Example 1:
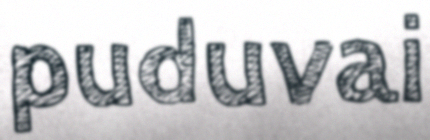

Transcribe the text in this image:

puduvai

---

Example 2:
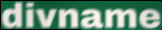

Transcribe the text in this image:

divname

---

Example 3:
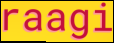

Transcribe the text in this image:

raagi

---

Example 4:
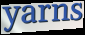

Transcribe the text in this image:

yarns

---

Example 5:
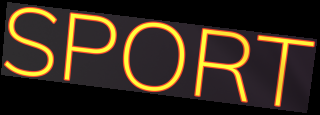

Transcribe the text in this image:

SPORT